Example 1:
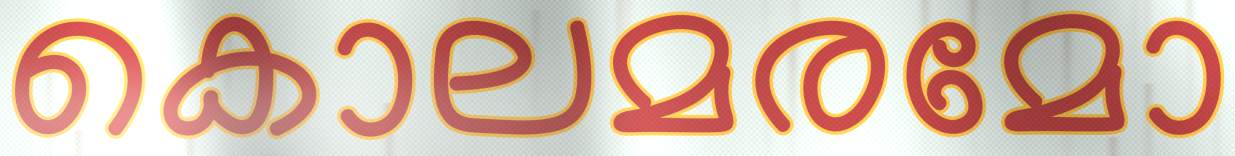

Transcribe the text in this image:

കൊലമരമോ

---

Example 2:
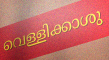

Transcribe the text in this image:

വെള്ളിക്കാശു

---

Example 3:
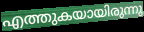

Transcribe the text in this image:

എത്തുകയായിരുന്നു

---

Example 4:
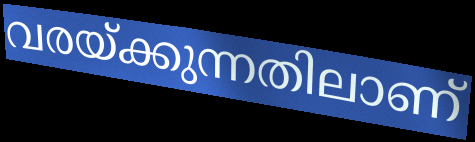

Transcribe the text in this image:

വരയ്ക്കുന്നതിലാണ്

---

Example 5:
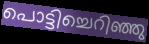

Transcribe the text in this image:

പൊട്ടിച്ചെറിഞ്ഞു